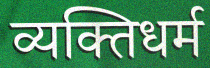
व्यक्तिधर्म